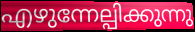
എഴുന്നേല്പിക്കുന്നു